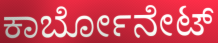
ಕಾರ್ಬೋನೇಟ್